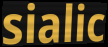
sialic